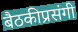
बैठकीप्रसंगी